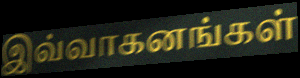
இவ்வாகனங்கள்